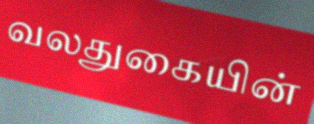
வலதுகையின்